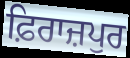
ਫ਼ਿਰਾਜ਼ਪੁਰ